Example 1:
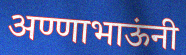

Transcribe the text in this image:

अण्णाभाऊंनी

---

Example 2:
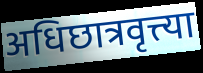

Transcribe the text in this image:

अधिछात्रवृत्त्या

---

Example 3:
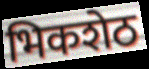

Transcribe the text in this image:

भिकशेठ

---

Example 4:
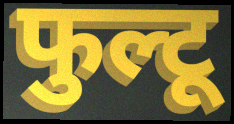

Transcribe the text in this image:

फुल्टू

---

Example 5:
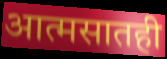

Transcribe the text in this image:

आत्मसातही